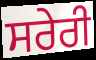
ਸਰੇਰੀ